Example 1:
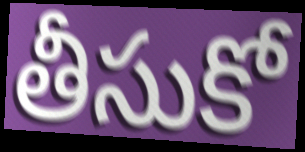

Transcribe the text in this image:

తీసుకో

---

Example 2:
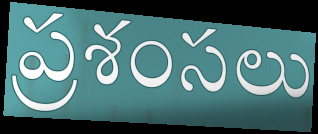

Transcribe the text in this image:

ప్రశంసలు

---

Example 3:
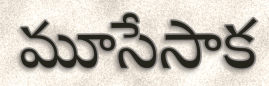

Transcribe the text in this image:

మూసేసాక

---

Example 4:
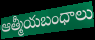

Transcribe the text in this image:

ఆత్మీయబంధాలు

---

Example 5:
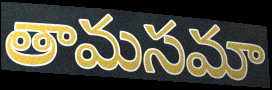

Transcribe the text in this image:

తామసమా